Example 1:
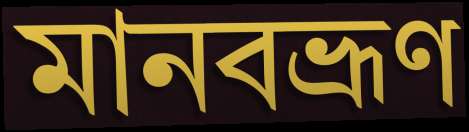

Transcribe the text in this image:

মানবভ্রূণ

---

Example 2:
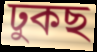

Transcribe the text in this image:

ঢুকছ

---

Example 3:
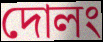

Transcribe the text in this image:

দোলং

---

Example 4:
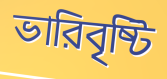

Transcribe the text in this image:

ভারিবৃষ্টি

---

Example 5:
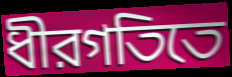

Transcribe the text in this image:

ধীরগতিতে